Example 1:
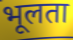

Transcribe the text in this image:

भूलता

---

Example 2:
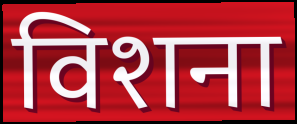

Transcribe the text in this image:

विशना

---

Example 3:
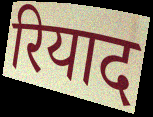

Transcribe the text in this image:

रियाद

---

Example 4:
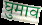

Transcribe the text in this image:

घुमाव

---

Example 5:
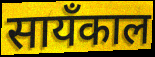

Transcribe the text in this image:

सायँकाल